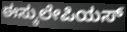
ಈಸ್ಕುಲೇಪಿಯಸ್